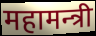
महामन्त्री